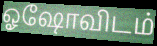
ஓஷோவிடம்